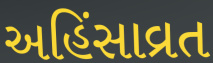
અહિંસાવ્રત